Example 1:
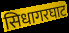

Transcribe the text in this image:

सिधागरघाट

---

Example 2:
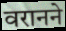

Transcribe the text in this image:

वरानने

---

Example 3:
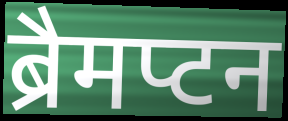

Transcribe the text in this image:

ब्रैमप्टन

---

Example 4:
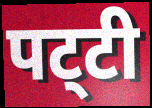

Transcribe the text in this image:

पट्‌टी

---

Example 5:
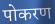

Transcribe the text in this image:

पोकरण